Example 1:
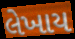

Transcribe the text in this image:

લેખાય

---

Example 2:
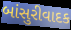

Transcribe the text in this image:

બાંસુરીવાદક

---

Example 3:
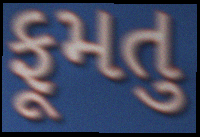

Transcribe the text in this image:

ફૂમતુ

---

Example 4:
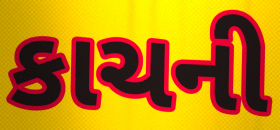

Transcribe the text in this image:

કાચની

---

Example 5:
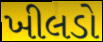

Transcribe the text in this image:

ખીલડો